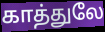
காத்துலே